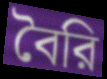
বৈরি